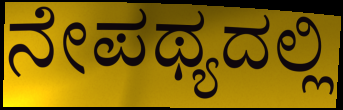
ನೇಪಥ್ಯದಲ್ಲಿ